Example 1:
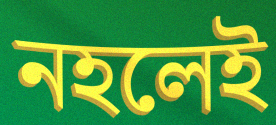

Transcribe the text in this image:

নহলেই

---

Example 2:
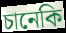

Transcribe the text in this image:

চানেকি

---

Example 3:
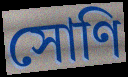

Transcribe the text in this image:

সোণি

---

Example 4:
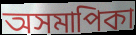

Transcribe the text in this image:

অসমাপিকা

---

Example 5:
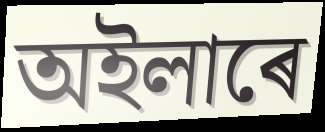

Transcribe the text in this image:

অইলাৰে